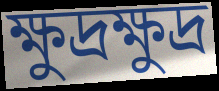
ক্ষুদ্রক্ষুদ্র